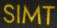
SIMT